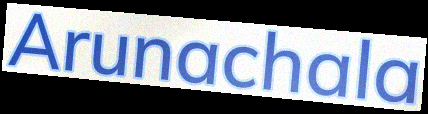
Arunachala